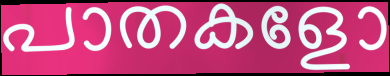
പാതകളോ